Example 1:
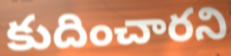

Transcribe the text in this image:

కుదించారని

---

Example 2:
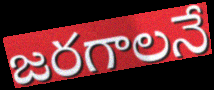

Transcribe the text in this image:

జరగాలనే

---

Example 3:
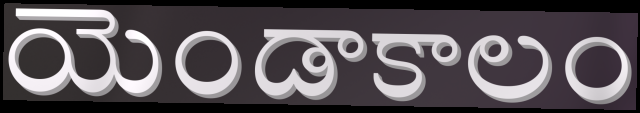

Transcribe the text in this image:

యెండాకాలం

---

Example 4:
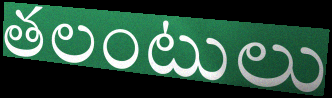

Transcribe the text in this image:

తలంటులు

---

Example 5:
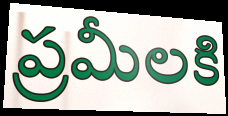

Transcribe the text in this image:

ప్రమీలకి